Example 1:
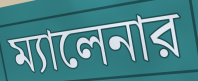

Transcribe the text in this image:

ম্যালেনার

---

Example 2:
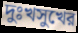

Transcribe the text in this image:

দুঃখসুখের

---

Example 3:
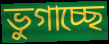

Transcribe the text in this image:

ভুগাচ্ছে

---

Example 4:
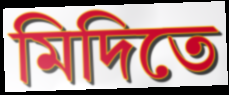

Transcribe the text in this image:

মিদিতে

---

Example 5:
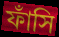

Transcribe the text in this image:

ফাঁসি